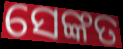
ସେଙ୍କତ